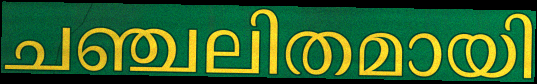
ചഞ്ചലിതമായി